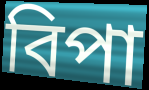
বিপা